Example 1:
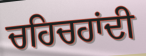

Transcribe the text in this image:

ਚਹਿਚਹਾਂਦੀ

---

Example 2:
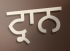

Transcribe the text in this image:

ਟ੍ਰਾਨ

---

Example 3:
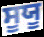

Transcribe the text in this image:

ਸੂਯੂ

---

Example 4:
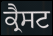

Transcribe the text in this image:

ਕ੍ਰੈਸਟ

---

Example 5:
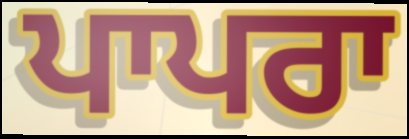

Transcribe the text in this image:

ਪਾਪਰਾ